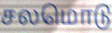
சலமொடு